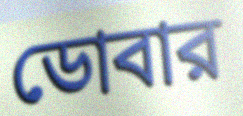
ডোবার